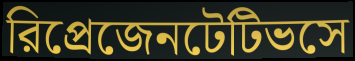
রিপ্রেজেনটেটিভসে